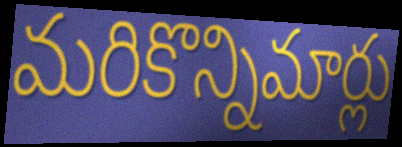
మరికొన్నిమార్లు